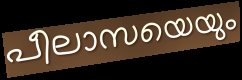
പീലാസയെയും